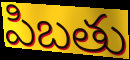
పిబతు